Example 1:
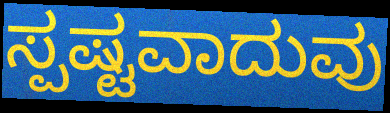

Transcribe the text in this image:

ಸ್ಪಷ್ಟವಾದುವು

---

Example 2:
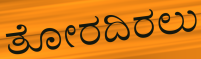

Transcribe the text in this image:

ತೋರದಿರಲು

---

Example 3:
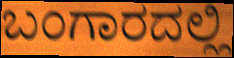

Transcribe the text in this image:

ಬಂಗಾರದಲ್ಲಿ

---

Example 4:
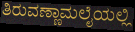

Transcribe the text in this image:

ತಿರುವಣ್ಣಾಮಲೈಯಲ್ಲಿ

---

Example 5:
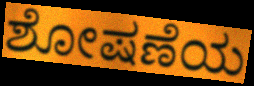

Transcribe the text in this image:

ಶೋಷಣೆಯ